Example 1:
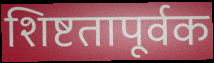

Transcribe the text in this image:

शिष्टतापूर्वक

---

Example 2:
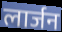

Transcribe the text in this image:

लार्जन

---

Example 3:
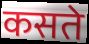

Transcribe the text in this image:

कसते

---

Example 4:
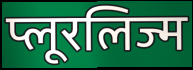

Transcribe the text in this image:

प्लूरलिज्म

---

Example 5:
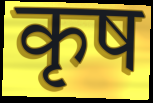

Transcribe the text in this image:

कृष